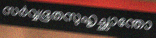
സർവ്വഭൂതസുഹൃച്ഛാന്തോ